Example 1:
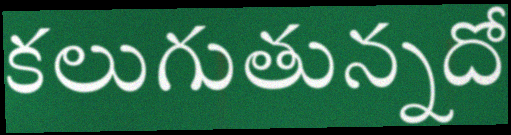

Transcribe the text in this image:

కలుగుతున్నదో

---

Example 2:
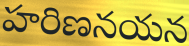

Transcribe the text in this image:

హరిణనయన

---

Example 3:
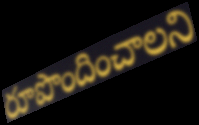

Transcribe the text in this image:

రూపొందించాలని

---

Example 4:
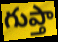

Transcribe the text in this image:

గుప్తా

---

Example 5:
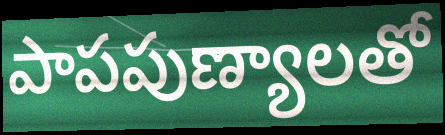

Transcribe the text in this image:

పాపపుణ్యాలతో